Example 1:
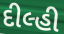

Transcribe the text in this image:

દીલ્હી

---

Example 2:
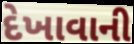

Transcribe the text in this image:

દેખાવાની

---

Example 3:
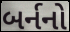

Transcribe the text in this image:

બર્નનો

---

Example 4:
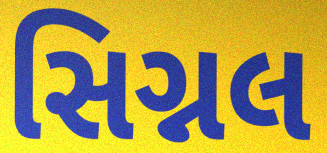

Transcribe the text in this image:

સિગ્નલ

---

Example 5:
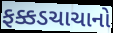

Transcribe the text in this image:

ફક્કડચાચાનો